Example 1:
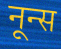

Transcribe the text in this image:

नून्स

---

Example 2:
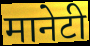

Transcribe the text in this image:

मानेटी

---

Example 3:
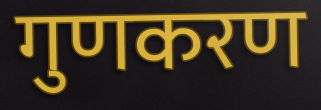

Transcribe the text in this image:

गुणकरण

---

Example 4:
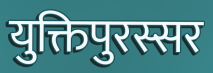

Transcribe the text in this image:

युक्तिपुरस्सर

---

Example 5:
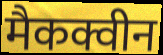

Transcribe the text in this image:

मैकक्वीन